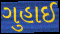
ગુહાઈ